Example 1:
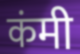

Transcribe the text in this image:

कंमी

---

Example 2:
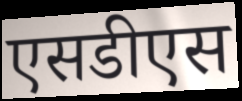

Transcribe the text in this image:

एसडीएस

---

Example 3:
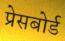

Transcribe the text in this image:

प्रेसबोर्ड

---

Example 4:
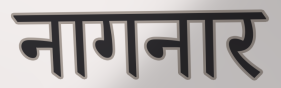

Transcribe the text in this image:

नागनार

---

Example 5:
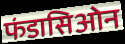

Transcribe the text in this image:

फंडासिओन